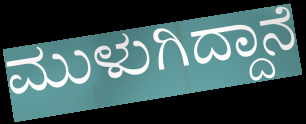
ಮುಳುಗಿದ್ದಾನೆ